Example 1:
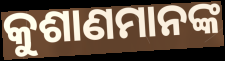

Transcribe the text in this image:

କୁଶାଣମାନଙ୍କ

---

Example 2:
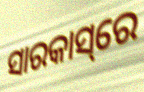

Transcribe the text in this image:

ସାରକାସ୍‌ରେ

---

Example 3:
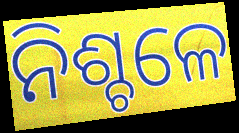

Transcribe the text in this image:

ନିଶ୍ଚଳେ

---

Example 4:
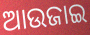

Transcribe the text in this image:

ଆଉଜାଇ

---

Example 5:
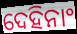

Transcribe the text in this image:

ଦେହିନାଂ